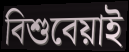
বিশুবেয়াই